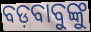
ବଡ଼ବାବୁଙ୍କୁ